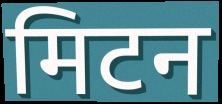
मिटन